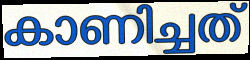
കാണിച്ചത്